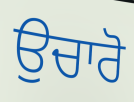
ਉਚਾਰੋ